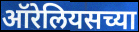
ऑरेलियसच्या